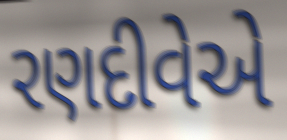
રણદીવેએ